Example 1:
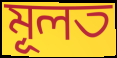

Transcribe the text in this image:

মূলত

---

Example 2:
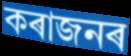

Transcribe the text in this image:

কৰাজনৰ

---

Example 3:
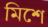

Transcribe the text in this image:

মিশে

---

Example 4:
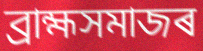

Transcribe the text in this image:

ব্ৰাহ্মসমাজৰ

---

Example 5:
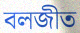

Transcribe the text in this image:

বলজীত